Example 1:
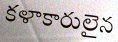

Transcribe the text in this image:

కళాకారులైన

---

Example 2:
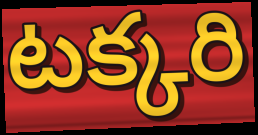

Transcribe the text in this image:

టక్కరి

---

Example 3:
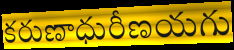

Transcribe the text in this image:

కరుణాధురీణయగు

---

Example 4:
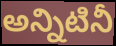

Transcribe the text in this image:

అన్నిటినీ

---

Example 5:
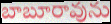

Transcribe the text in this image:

బాబూరావును